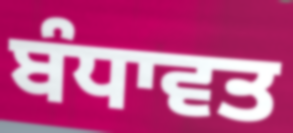
ਬੰਧਾਵਤ